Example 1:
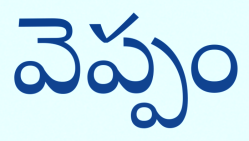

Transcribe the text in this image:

వెప్పం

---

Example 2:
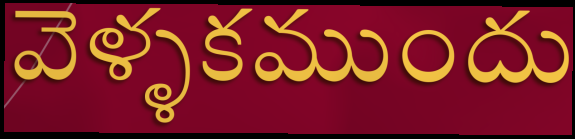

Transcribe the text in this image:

వెళ్ళకముందు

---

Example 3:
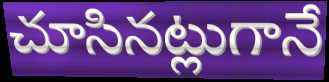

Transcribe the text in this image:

చూసినట్లుగానే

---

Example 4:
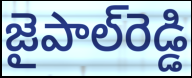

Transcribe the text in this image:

జైపాల్‌రెడ్డి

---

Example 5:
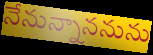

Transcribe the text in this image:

నేనున్నాననును